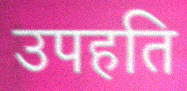
उपहति